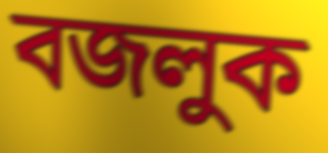
বজলুক